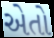
એતો